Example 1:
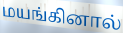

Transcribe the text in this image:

மயங்கினால்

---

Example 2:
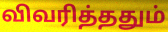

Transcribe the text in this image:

விவரித்ததும்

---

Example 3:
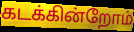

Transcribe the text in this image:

கடக்கின்றோம்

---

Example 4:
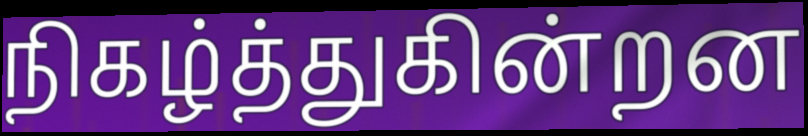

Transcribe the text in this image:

நிகழ்த்துகின்றன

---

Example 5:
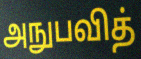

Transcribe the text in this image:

அநுபவித்